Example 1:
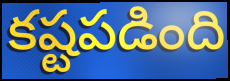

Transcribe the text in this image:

కష్టపడింది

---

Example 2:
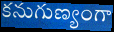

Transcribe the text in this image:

కనుగుణ్యంగా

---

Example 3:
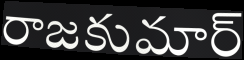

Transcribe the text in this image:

రాజకుమార్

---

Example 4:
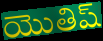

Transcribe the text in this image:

యొతిష్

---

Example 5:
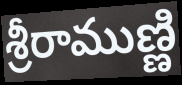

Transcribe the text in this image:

శ్రీరాముణ్ణి